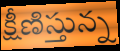
క్షీణిస్తున్న